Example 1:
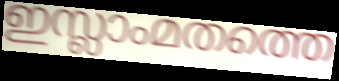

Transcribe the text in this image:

ഇസ്ലാംമതത്തെ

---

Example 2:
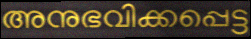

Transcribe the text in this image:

അനുഭവിക്കപ്പെട്ട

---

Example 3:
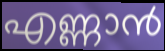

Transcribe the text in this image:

എണ്ണാൻ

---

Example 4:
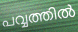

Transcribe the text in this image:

പവ്വത്തിൽ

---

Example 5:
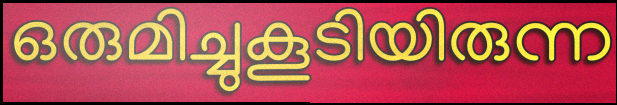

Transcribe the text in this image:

ഒരുമിച്ചുകൂടിയിരുന്ന